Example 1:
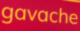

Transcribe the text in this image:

gavache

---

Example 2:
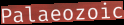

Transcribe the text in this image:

Palaeozoic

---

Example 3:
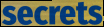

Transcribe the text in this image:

secrets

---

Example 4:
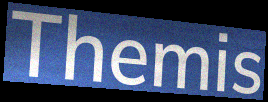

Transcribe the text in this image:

Themis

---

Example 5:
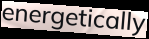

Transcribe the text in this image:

energetically